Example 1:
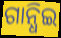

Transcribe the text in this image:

ଗାନ୍ଧିଇ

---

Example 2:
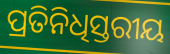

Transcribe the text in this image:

ପ୍ରତିନିଧିସ୍ତରୀୟ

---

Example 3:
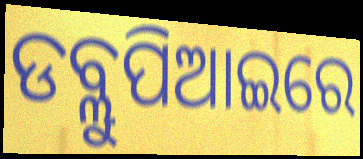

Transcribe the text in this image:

ଡବ୍ଲୁପିଆଇରେ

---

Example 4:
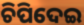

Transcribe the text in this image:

ଚିପିଦେଇ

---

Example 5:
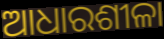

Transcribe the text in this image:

ଆଧାରଶୀଳା